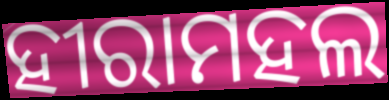
ହୀରାମହଲ